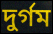
দুর্গম